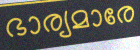
ഭാര്യമാരേ